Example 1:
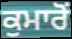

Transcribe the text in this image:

ਕੁਮਾਰੋਂ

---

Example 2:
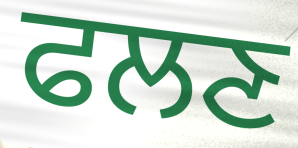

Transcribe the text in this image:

ਫਲਣ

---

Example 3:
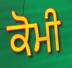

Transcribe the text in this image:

ਕੋਮੀ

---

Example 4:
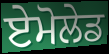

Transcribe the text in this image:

ਏਮੋਲੇਡ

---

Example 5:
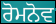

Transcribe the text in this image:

ਰੋਮਨੋਵ